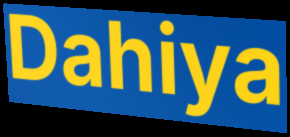
Dahiya